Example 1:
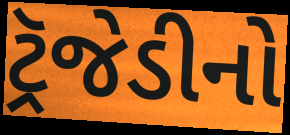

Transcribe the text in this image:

ટ્રૅજેડીનો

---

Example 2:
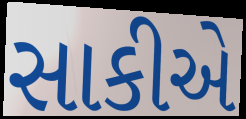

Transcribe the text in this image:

સાકીએ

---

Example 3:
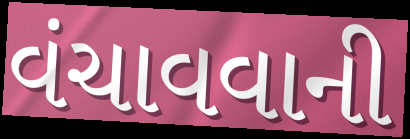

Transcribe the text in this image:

વંચાવવાની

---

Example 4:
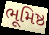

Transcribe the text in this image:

ભૂમિષ્ઠ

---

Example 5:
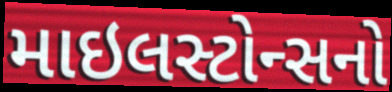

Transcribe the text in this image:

માઇલસ્ટોન્સનો